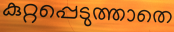
കുറ്റപ്പെടുത്താതെ